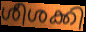
ശീശക്കി